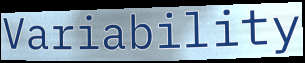
Variability